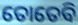
ତୋତେବି